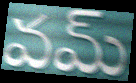
వమ్